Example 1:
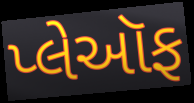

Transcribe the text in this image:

પ્લેઑફ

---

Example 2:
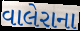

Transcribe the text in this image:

વાલેરાના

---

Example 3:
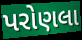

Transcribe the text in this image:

પરોણલા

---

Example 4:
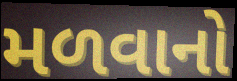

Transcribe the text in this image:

મળવાનો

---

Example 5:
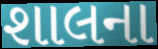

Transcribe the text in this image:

શાલના